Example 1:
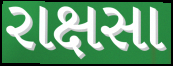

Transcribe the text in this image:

રાક્ષસા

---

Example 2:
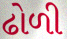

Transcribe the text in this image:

ઢોળી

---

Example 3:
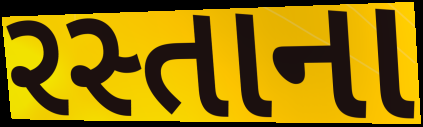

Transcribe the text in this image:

રસ્તાના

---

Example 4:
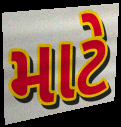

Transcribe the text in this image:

માટે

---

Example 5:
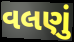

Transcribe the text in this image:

વલણું